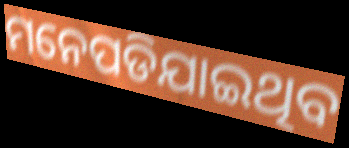
ମନେପଡିଯାଇଥିବ